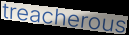
treacherous